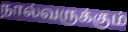
நால்வருக்கும்